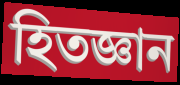
হিতজ্ঞান